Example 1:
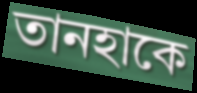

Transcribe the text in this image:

তানহাকে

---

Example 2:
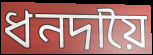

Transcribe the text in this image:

ধনদায়ৈ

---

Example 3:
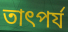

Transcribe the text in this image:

তাৎপর্য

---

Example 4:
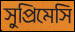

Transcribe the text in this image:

সুপ্রিমেসি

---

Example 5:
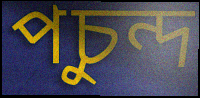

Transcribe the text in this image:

পচুন্দ